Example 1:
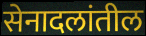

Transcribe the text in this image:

सेनादलांतील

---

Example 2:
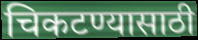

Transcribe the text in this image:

चिकटण्यासाठी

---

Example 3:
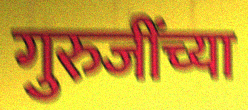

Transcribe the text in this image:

गुरुजींच्या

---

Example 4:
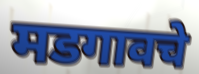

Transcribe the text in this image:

मडगावचे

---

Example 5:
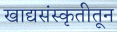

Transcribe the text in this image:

खाद्यसंस्कृतीतून